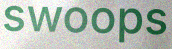
swoops